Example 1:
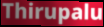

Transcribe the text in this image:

Thirupalu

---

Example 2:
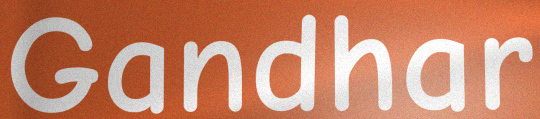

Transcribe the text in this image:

Gandhar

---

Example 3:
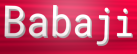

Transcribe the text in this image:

Babaji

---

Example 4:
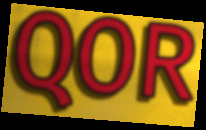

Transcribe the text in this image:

QOR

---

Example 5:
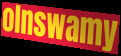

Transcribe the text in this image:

olnswamy